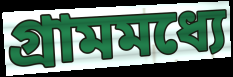
গ্রামমধ্যে